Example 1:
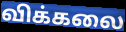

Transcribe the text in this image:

விக்கலை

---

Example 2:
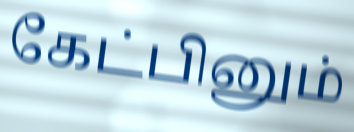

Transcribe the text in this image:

கேட்பினும்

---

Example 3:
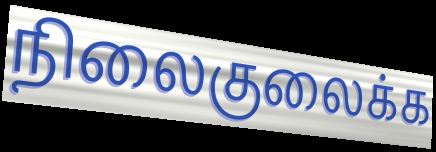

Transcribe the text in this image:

நிலைகுலைக்க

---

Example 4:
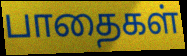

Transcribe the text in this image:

பாதைகள்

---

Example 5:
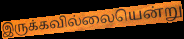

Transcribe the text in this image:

இருக்கவில்லையென்று